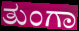
ತುಂಗಾ